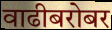
वाढीबरोबर